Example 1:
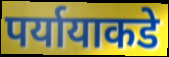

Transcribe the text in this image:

पर्यायाकडे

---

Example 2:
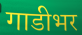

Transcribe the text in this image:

गाडीभर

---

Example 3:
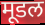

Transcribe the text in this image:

मूडल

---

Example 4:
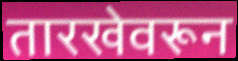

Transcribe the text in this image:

तारखेवरून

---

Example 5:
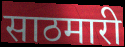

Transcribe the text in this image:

साठमारी